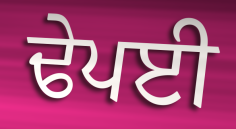
ਢੇਪਈ